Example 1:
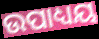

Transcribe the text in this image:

ଉପାଧ୍ୟୟ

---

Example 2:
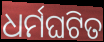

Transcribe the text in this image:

ଧର୍ମଘଟିତ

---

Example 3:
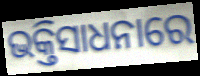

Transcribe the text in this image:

ଭକ୍ତିସାଧନାରେ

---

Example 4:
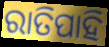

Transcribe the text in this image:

ରାତିପାହି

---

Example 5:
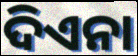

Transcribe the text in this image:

ଦିଏନା